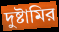
দুষ্টামির